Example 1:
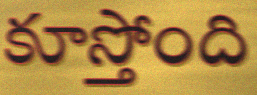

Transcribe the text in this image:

కూస్తోంది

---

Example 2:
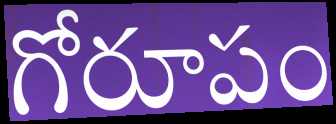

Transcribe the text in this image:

గోరూపం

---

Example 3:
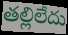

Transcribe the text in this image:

తల్లిలేదు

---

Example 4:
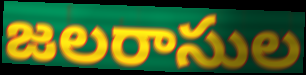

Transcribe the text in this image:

జలరాసుల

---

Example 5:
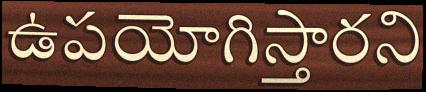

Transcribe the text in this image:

ఉపయోగిస్తారని